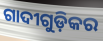
ଗାଦୀଗୁଡ଼ିକର